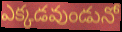
ఎక్కడవుండునో